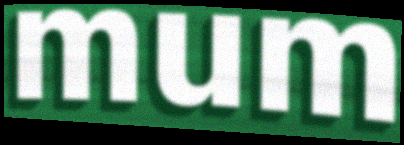
mum